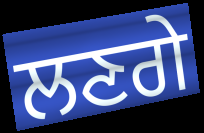
ਲਣਗੇ